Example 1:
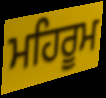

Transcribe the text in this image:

ਮਹਿਰੂਮ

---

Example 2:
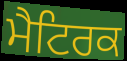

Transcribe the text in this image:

ਮੈਟਿਰਕ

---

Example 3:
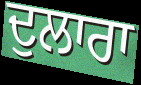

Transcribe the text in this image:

ਦੁਲਾਰਾ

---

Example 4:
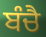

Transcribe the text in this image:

ਬੰਚੈ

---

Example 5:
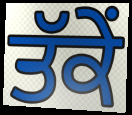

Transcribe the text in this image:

ਤੱਕੇਂ